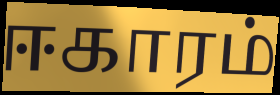
ஈகாரம்